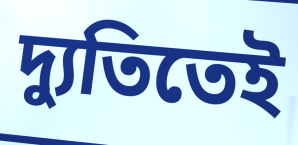
দ্যুতিতেই